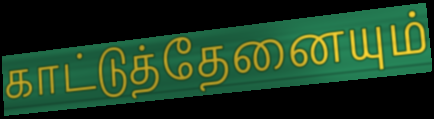
காட்டுத்தேனையும்